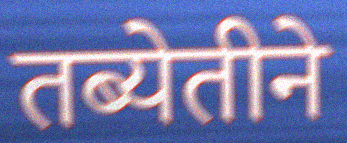
तब्येतीने